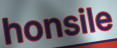
honsile